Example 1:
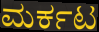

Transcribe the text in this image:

ಮರ್ಕಟ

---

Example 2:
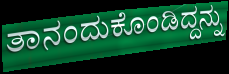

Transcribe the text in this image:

ತಾನಂದುಕೊಂಡಿದ್ದನ್ನು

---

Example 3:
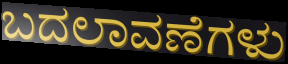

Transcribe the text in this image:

ಬದಲಾವಣೆಗಳು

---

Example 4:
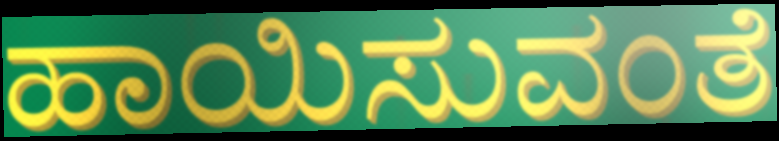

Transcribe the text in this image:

ಹಾಯಿಸುವಂತೆ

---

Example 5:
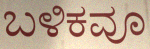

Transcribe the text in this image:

ಬಳಿಕವೂ